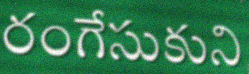
రంగేసుకుని